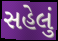
સહેલું